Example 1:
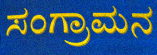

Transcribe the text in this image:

ಸಂಗ್ರಾಮನ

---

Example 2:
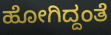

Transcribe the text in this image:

ಹೋಗಿದ್ದಂತೆ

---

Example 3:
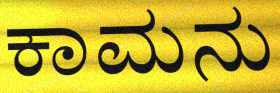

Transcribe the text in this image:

ಕಾಮನು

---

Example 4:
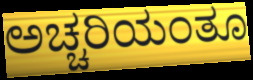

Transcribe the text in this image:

ಅಚ್ಚರಿಯಂತೂ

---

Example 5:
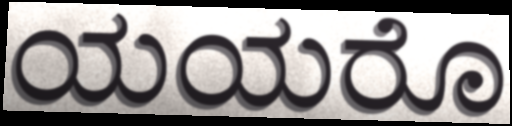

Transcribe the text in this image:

ಯಯರೊ